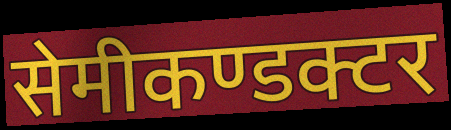
सेमीकण्डक्टर